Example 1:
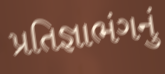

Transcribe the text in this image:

પ્રતિજ્ઞાભંગનું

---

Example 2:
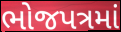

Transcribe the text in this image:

ભોજપત્રમાં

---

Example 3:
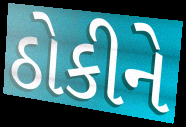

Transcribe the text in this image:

ઠોકીને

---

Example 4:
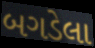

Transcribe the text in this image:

બગડેલા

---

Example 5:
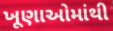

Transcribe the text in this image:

ખૂણાઓમાંથી